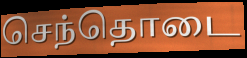
செந்தொடை